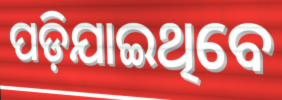
ପଡ଼ିଯାଇଥିବେ